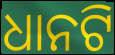
ଧାନଟି